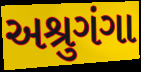
અશ્રુગંગા